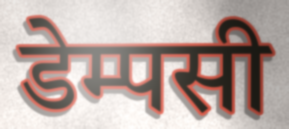
डेम्पसी